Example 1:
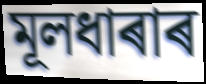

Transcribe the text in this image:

মূলধাৰাৰ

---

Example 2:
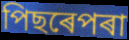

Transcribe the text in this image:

পিছৰেপৰা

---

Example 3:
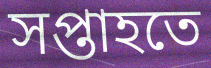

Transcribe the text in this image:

সপ্তাহতে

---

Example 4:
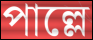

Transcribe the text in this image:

পাল্লে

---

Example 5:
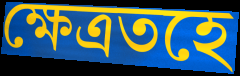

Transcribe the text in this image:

ক্ষেত্ৰতহে